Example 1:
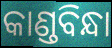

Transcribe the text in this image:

କାଣ୍ଡବିନ୍ଧା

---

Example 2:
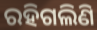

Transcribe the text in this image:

ରହିଗଲିଣି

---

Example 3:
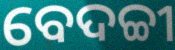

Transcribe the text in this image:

ବେଦଚ୍ଚୀ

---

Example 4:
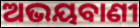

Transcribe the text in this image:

ଅଭୟବାଣୀ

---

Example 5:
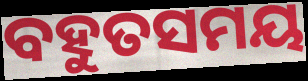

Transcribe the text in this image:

ବହୁତସମୟ